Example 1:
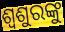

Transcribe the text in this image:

ଶ୍ୱଶୁରଙ୍କୁ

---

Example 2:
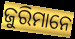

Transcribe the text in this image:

ଜୁରିମାନେ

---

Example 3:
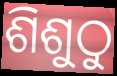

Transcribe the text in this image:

ଶିଶୁଠୁ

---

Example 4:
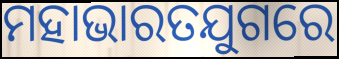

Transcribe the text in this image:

ମହାଭାରତଯୁଗରେ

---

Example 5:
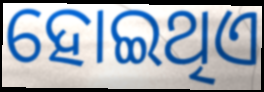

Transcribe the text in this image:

ହୋଇଥିଏ